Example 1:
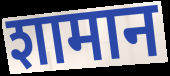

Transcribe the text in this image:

शामान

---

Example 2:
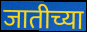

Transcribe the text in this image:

जातीच्या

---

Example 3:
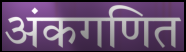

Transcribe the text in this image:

अंकगणित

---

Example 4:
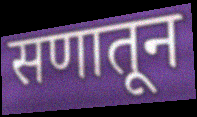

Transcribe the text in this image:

सणातून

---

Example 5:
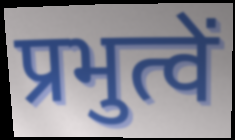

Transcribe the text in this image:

प्रभुत्वें